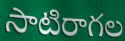
సాటిరాగల